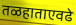
तळहाताएवढे